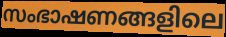
സംഭാഷണങ്ങളിലെ